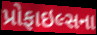
પ્રોફાઇલ્સના